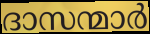
ദാസന്മാർ